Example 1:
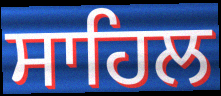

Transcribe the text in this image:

ਸਾਹਿਲ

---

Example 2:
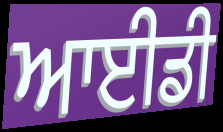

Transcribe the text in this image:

ਆਈਡੀ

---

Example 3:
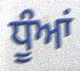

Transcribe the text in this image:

ਧੂੰਆਂ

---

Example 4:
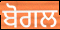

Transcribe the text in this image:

ਬੋਗਲ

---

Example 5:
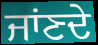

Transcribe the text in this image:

ਜਾਂਣਦੇ